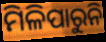
ମିଳିପାରୁନି